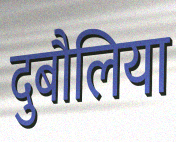
दुबौलिया